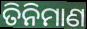
ତିନିମାଣ